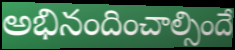
అభినందించాల్సిందే